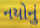
નયોનું